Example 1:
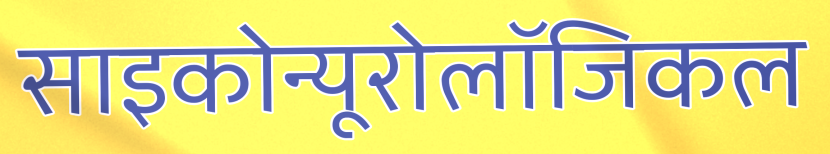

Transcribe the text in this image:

साइकोन्यूरोलॉजिकल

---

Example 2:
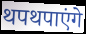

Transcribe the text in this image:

थपथपाएंगे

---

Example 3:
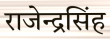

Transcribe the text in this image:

राजेन्द्रसिंह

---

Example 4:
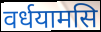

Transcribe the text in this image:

वर्धयामसि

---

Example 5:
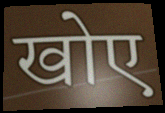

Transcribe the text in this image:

खोए